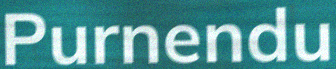
Purnendu